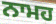
ਨਾਮਹ